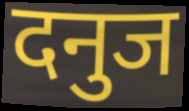
दनुज